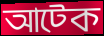
আট্কে